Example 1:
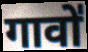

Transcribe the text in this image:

गावो॑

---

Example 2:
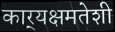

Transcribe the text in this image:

कार्यक्षमतेशी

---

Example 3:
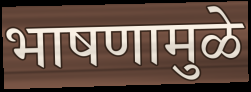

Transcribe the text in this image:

भाषणामुळे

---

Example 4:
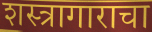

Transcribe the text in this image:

शस्त्रागाराचा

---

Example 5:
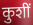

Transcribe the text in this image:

कुशीं